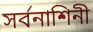
সর্বনাশিনী